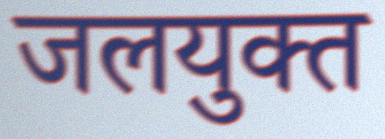
जलयुक्त